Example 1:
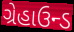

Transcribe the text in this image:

ગ્રેહાઉન્ડ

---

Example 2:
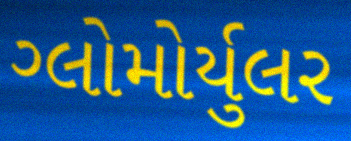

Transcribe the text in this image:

ગ્લોમોર્યુલર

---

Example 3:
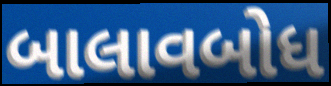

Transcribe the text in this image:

બાલાવબોધ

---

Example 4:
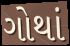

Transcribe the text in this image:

ગોથાં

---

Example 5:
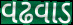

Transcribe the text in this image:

વઢવાડ